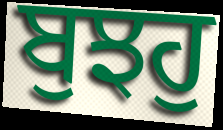
ਬੁਝਹੁ